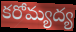
కరోమ్యద్య